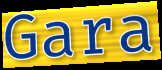
Gara